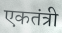
एकतंत्री